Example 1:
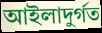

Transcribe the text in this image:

আইলাদুর্গত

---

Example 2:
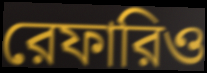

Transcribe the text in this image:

রেফারিও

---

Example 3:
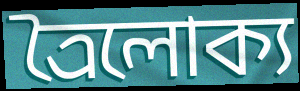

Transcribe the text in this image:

ত্রৈলোক্য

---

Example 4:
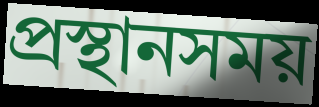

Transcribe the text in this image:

প্রস্থানসময়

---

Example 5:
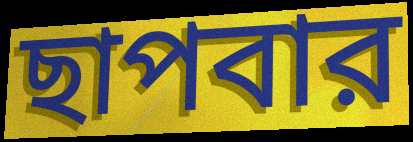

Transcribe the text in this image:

ছাপবার